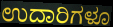
ಉದಾರಿಗಳೂ